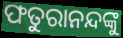
ଫତୁରାନନ୍ଦଙ୍କୁ